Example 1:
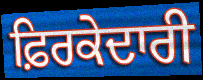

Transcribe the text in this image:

ਫ਼ਿਰਕੇਦਾਰੀ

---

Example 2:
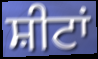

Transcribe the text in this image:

ਸ਼ੀਟਾਂ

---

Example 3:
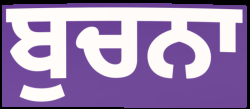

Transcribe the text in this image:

ਬੁਚਨਾ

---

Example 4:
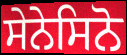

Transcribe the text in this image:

ਸੇਨੇਸਿਨੋ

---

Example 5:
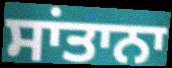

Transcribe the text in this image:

ਸਾਂਤਾਨਾ